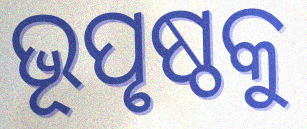
ଭୂପୃଷ୍ଠକୁ